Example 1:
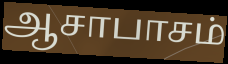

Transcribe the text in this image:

ஆசாபாசம்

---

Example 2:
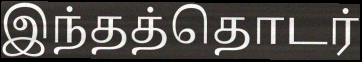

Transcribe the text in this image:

இந்தத்தொடர்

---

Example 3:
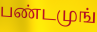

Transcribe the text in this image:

பண்டமுங்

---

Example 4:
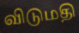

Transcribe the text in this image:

விடுமதி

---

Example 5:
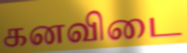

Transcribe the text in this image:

கனவிடை